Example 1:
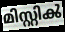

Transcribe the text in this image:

മിസ്റ്റിൿ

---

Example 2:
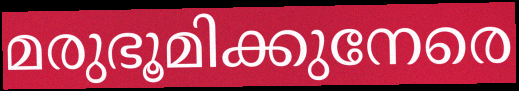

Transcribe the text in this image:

മരുഭൂമിക്കുനേരെ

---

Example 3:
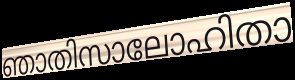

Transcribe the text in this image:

ഞാതിസാലോഹിതാ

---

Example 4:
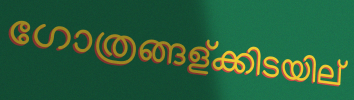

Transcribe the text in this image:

ഗോത്രങ്ങള്ക്കിടയില്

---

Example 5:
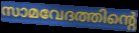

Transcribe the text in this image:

സാമവേദത്തിന്റെ